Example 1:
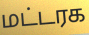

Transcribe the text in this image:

மட்டரக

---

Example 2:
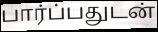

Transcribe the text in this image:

பார்ப்பதுடன்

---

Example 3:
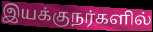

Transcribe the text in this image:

இயக்குநர்களில்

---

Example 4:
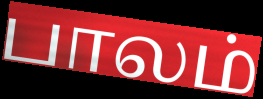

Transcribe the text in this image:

பாலம்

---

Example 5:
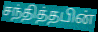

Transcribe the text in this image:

சந்தித்தபின்